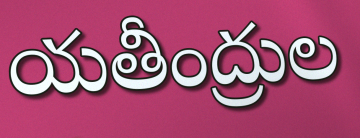
యతీంద్రుల